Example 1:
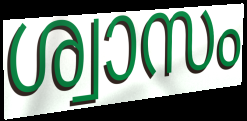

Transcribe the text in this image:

ശ്വാസം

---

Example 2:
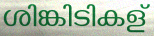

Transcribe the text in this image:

ശിങ്കിടികള്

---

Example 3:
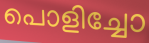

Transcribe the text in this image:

പൊളിച്ചോ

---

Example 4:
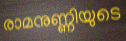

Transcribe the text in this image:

രാമനുണ്ണിയുടെ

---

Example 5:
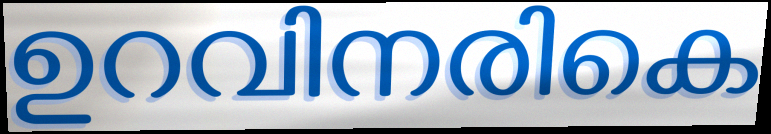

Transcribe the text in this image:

ഉറവിനരികെ